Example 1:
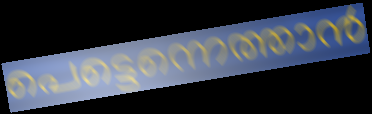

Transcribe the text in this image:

പെട്ടെന്നെത്താൻ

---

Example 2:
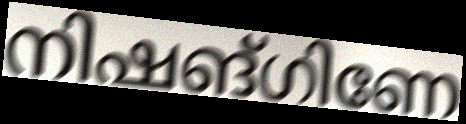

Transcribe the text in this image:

നിഷങ്ഗിണേ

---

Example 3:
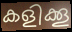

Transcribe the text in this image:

കളിക്കൂ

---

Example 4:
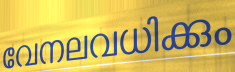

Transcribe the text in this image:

വേനലവധിക്കും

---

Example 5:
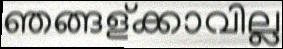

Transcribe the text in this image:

ഞങ്ങള്ക്കാവില്ല